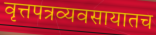
वृत्तपत्रव्यवसायातच